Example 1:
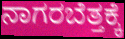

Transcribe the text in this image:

ನಾಗರಬೆತ್ತಕ್ಕೆ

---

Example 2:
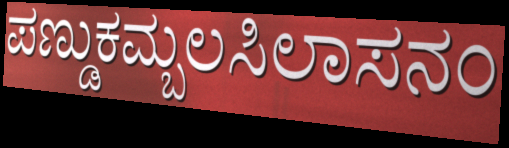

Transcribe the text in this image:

ಪಣ್ಡುಕಮ್ಬಲಸಿಲಾಸನಂ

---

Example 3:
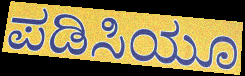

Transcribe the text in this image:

ಪಡಿಸಿಯೂ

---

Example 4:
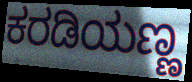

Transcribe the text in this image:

ಕರಡಿಯಣ್ಣ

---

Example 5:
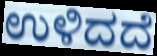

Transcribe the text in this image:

ಉಳಿದದೆ